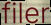
filer